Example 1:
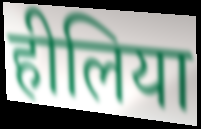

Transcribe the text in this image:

हीलिया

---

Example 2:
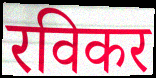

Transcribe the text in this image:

रविकर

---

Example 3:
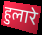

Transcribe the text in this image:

हुलारे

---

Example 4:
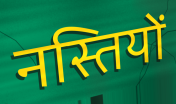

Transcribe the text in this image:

नस्तियों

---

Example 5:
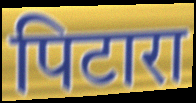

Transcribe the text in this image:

पिटारा